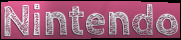
Nintendo